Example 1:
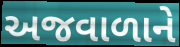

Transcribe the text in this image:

અજવાળાને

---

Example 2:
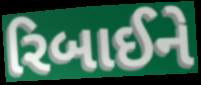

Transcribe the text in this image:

રિબાઈને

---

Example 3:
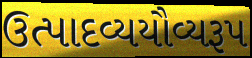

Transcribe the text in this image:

ઉત્પાદવ્યયૌવ્યરૂપ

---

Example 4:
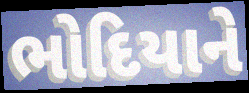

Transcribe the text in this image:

ભોદિયાને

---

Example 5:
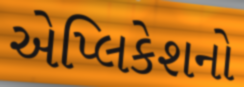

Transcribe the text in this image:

એપ્લિકેશનો